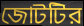
জোটটির